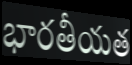
భారతీయత